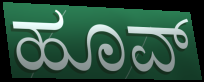
ಹೂವ್